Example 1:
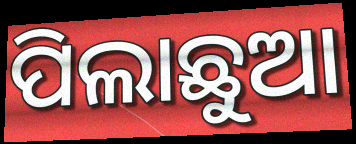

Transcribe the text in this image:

ପିଲାଛୁଆ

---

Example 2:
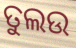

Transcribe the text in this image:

ତୁଲଉ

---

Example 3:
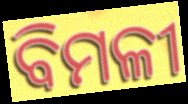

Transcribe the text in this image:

ବିମଳୀ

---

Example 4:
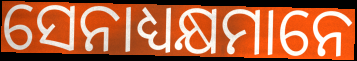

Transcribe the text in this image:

ସେନାଧ୍ୟକ୍ଷମାନେ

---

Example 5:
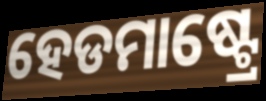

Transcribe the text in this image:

ହେଡମାଷ୍ଟ୍ରେ